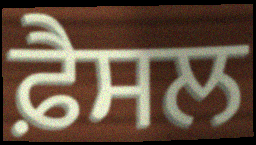
ਫ਼ੈਸਲ